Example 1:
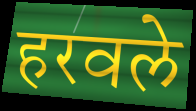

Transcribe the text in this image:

हरवले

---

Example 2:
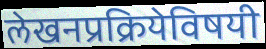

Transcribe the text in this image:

लेखनप्रक्रियेविषयी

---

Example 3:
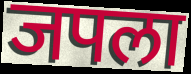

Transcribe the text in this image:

जपला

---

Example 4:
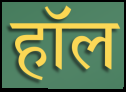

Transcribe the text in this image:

हॉल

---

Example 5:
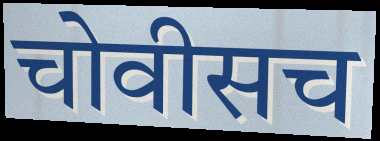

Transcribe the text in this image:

चोवीसच